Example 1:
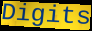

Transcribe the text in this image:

Digits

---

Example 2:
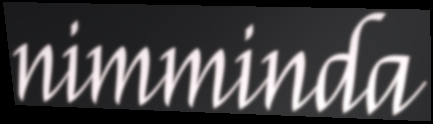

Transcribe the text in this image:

nimminda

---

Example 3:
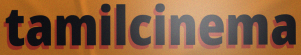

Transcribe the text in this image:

tamilcinema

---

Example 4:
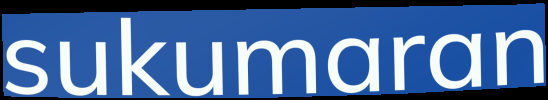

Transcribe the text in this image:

sukumaran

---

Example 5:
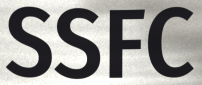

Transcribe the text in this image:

SSFC